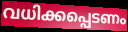
വധിക്കപ്പെടണം